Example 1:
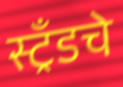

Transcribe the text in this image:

स्ट्रँडचे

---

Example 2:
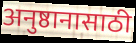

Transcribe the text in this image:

अनुष्ठानासाठी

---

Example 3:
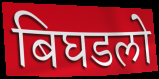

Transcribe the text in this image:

बिघडलो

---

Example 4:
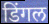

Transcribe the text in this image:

डिंगल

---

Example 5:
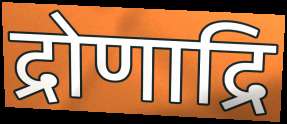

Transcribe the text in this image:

द्रोणाद्रि